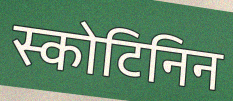
स्कोटिनिन